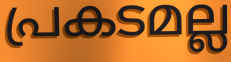
പ്രകടമല്ല